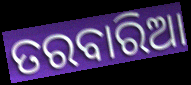
ତରବାରିଆ